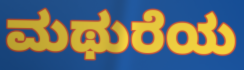
ಮಥುರೆಯ